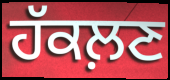
ਹੱਕਲ਼ਣ